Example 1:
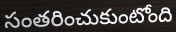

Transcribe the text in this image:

సంతరించుకుంటోంది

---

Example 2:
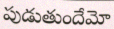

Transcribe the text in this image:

పుడుతుందేమో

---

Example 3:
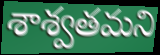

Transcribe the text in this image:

శాశ్వతమని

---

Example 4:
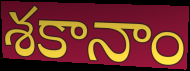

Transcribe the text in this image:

శకానాం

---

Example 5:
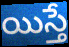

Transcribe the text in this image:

యిస్తే